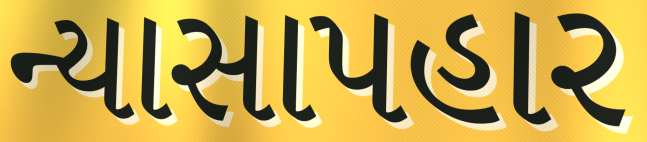
ન્યાસાપહાર